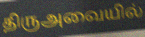
திருஅவையில்